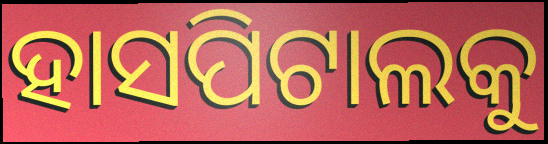
ହାସପିଟାଲକୁ